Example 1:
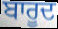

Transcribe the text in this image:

ਬਾਰੂਦ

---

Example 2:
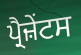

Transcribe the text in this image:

ਪ੍ਰੈਜ਼ੇਂਟਸ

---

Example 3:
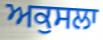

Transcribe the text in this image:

ਅਕੁਸਲਾ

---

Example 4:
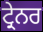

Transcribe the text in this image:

ਟ੍ਰੇਨਰ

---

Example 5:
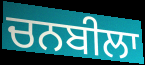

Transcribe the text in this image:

ਚਨਬੀਲਾ